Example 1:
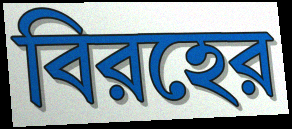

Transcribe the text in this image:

বিরহের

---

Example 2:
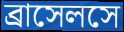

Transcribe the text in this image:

ব্রাসেলসে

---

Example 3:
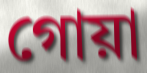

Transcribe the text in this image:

গোয়া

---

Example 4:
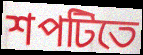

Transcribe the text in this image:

শপটিতে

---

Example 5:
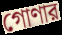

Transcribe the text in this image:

গোণার